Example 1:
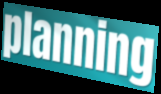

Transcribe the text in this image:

planning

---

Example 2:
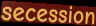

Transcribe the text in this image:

secession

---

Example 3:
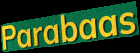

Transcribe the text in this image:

Parabaas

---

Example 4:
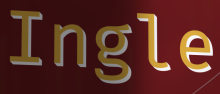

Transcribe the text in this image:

Ingle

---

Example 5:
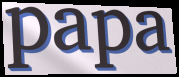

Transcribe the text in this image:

papa